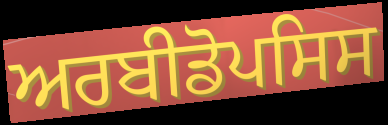
ਅਰਬੀਡੋਪਸਿਸ